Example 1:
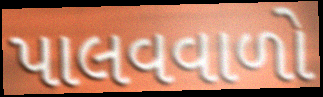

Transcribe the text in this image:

પાલવવાળો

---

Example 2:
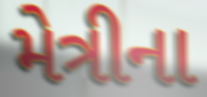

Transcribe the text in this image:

મેત્રીના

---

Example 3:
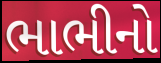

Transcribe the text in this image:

ભાભીનો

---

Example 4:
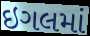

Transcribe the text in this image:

ઇગલમાં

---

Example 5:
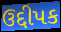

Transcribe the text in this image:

ઉદ્દીપક